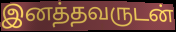
இனத்தவருடன்